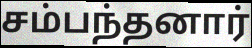
சம்பந்தனார்